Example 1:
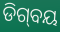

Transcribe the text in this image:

ଡିଗ୍‌ବୟ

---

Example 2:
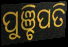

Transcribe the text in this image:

ପୁଞ୍ଚିପତି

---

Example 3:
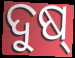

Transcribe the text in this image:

ଦୁଷ୍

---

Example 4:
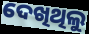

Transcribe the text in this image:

ଦେଖିଥିଲୁ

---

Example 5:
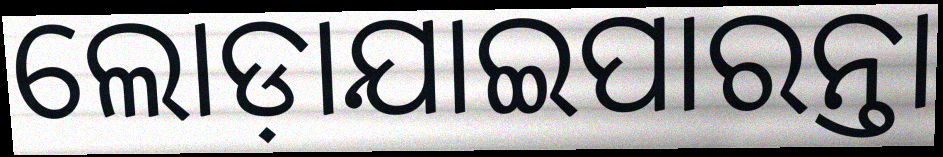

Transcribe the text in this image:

ଲୋଡ଼ାଯାଇପାରନ୍ତା